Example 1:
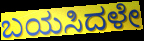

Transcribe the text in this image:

ಬಯಸಿದಳೇ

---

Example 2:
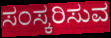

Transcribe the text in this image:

ಸಂಸ್ಕರಿಸುವ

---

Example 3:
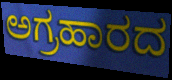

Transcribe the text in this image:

ಅಗ್ರಹಾರದ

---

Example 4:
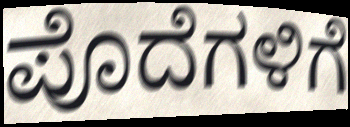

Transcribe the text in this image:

ಪೊದೆಗಳಿಗೆ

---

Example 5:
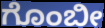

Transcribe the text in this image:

ಗೊಂಬೀ